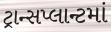
ટ્રાન્સપ્લાન્ટમાં